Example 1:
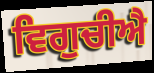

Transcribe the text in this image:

ਵਿਗੁਚੀਐ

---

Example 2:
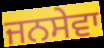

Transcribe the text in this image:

ਜਨਸੇਵਾ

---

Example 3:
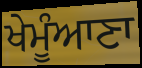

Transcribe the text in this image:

ਖੇਮੂੰਆਣਾ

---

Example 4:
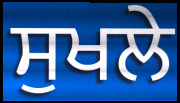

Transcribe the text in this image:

ਸੁਖਲੇ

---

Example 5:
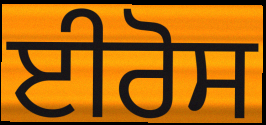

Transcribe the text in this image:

ਈਰੋਸ